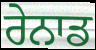
ਰੇਨਾਡ